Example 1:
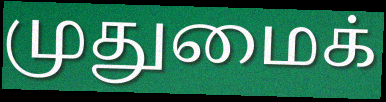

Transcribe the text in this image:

முதுமைக்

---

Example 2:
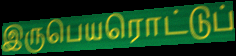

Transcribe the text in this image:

இருபெயரொட்டுப்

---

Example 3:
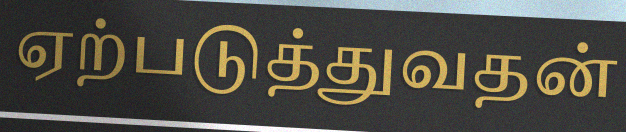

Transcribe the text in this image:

ஏற்படுத்துவதன்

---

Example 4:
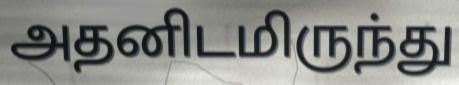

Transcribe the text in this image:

அதனிடமிருந்து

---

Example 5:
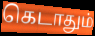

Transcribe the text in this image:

கெடாதும்